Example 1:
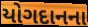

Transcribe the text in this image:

યોગદાનના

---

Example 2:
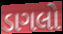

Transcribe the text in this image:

ડાગલો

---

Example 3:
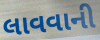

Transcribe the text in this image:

લાવવાની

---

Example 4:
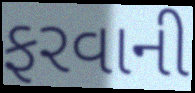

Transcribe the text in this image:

ફરવાની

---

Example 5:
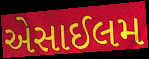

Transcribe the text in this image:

એસાઈલમ